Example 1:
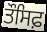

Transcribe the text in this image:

ਤੌਸਿਫ਼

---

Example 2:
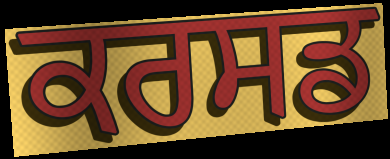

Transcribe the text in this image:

ਕਰਸਡ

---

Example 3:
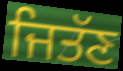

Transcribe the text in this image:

ਜਿਤੱਣ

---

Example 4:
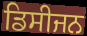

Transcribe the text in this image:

ਡਿਸੀਜਨ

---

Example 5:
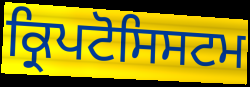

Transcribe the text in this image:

ਕ੍ਰਿਪਟੋਸਿਸਟਮ